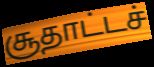
சூதாட்டச்